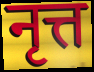
नृत्त